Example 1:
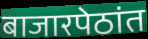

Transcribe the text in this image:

बाजारपेठांत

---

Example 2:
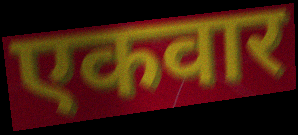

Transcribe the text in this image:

एकवार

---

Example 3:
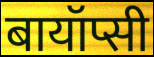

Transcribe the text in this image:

बायॉप्सी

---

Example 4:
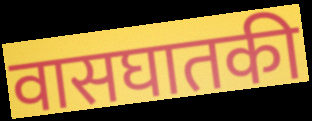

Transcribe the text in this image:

वासघातकी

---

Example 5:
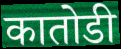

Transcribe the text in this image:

कातोडी